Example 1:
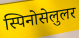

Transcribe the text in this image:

स्पिनोसेलुलर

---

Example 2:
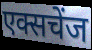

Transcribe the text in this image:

एक्सचेंज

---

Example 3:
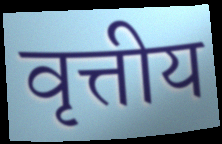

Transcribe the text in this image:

वृत्तीय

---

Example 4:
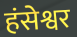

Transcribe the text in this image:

हंसेश्वर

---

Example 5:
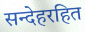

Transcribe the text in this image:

सन्देहरहित